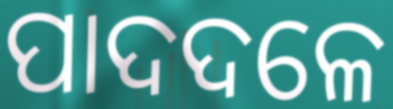
ପାଦଦଳେ